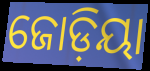
ଜୋଡ଼ିୟା